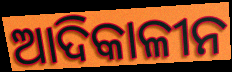
ଆଦିକାଳୀନ